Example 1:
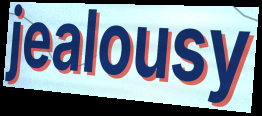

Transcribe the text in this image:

jealousy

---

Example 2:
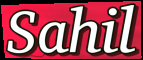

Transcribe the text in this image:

Sahil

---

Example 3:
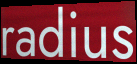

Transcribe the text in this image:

radius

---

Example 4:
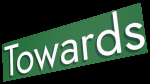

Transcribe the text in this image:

Towards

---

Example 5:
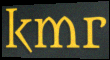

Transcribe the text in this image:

kmr